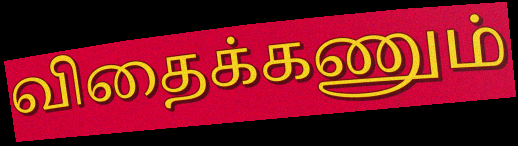
விதைக்கணும்